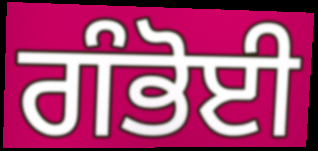
ਗੰਭੋਈ